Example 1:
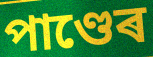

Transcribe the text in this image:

পাণ্ডেৰ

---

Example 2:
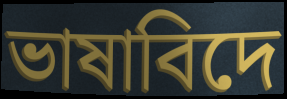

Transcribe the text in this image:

ভাষাবিদে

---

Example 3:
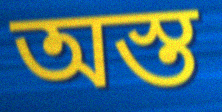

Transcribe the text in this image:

অস্ত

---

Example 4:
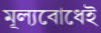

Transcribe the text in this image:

মূল্যবোধেই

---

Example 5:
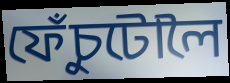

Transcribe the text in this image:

ফেঁচুটোলৈ